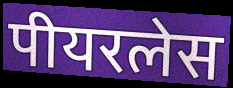
पीयरलेस